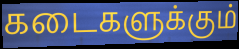
கடைகளுக்கும்